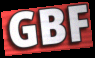
GBF